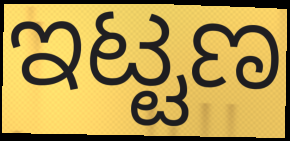
ಇಟ್ಟಣ